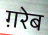
ग़रेब